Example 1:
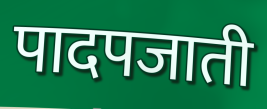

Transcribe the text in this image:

पादपजाती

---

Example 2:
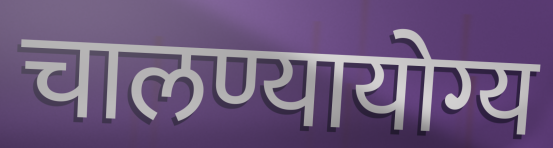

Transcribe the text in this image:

चालण्यायोग्य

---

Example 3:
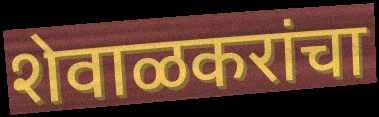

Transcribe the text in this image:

शेवाळकरांचा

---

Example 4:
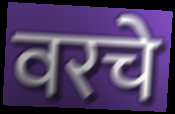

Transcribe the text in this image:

वरचे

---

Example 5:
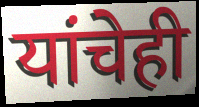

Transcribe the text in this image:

यांचेही